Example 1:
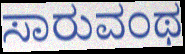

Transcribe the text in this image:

ಸಾರುವಂಥ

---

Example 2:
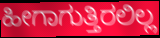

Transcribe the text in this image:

ಹೀಗಾಗುತ್ತಿರಲಿಲ್ಲ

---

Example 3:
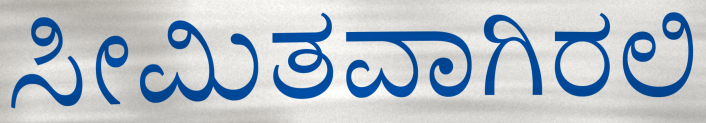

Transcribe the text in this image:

ಸೀಮಿತವಾಗಿರಲಿ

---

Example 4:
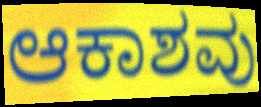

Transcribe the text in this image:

ಆಕಾಶವು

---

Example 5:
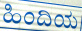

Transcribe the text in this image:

ಹಿಂದಿಯ